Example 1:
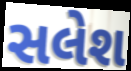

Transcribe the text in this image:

સલેશ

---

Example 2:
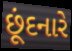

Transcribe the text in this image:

છૂંદનારે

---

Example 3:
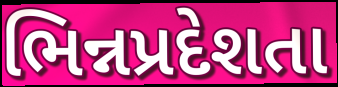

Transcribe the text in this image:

ભિન્નપ્રદેશતા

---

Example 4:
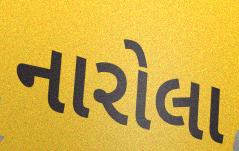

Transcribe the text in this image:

નારોલા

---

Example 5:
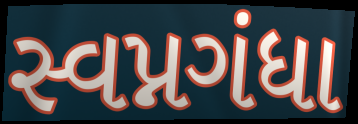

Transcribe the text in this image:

સ્વપ્નગંધા